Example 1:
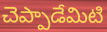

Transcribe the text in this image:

చెప్పాడేమిటి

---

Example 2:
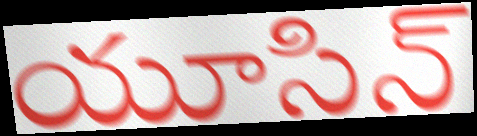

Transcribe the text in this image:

యూసిన్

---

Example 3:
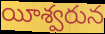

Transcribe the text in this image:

యీశ్వరున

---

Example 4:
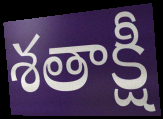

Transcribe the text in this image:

శతాక్షీ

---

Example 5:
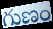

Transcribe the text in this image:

గుణం